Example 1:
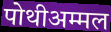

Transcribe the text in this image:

पोथीअम्मल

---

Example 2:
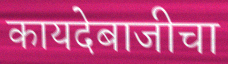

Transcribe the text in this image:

कायदेबाजीचा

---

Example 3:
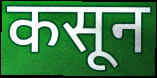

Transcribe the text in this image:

कसून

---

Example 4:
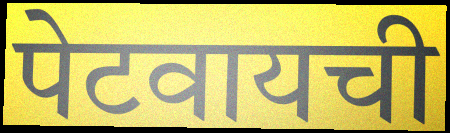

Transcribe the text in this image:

पेटवायची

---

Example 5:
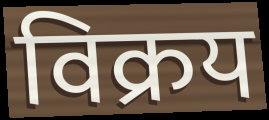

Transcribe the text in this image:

विक्रय